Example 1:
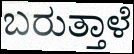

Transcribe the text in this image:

ಬರುತ್ತಾಳೆ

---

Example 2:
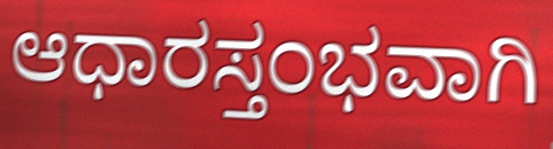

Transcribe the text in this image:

ಆಧಾರಸ್ತಂಭವಾಗಿ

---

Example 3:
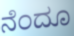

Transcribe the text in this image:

ನೆಂದೂ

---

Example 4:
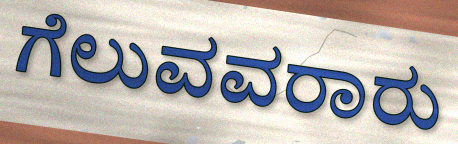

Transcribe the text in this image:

ಗೆಲುವವರಾರು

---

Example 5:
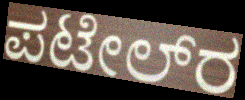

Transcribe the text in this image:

ಪಟೇಲ್‌ರ